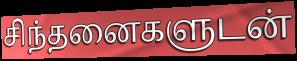
சிந்தனைகளுடன்